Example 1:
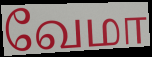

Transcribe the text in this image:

வேமா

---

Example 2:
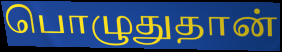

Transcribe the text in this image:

பொழுதுதான்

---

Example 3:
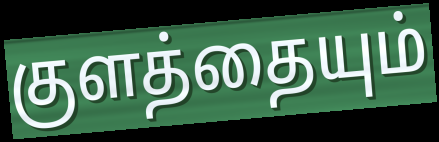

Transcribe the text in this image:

குளத்தையும்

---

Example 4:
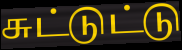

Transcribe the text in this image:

சுட்டுட்டு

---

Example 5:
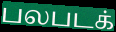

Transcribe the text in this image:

பலபடக்